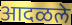
आदळले